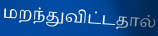
மறந்துவிட்டதால்